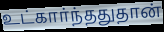
உட்கார்ந்ததுதான்